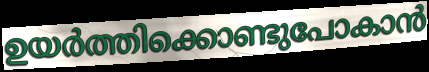
ഉയർത്തിക്കൊണ്ടുപോകാൻ